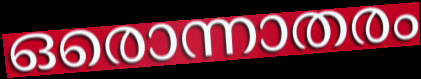
ഒരൊന്നാതരം